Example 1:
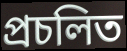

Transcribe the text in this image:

প্ৰচলিত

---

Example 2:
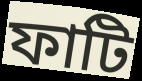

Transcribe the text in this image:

ফাটি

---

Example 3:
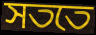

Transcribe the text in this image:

সততে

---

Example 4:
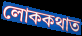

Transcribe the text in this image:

লোককথাত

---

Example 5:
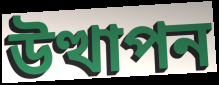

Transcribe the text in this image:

উত্থাপন